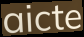
aicte